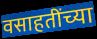
वसाहतींच्या